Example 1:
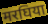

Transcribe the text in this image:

मरघिया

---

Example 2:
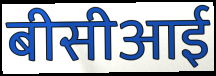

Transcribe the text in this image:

बीसीआई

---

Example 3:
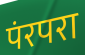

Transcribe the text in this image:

पंरपरा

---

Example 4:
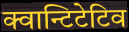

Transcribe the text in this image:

क्वान्टिटेटिव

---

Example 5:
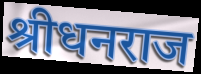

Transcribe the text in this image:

श्रीधनराज